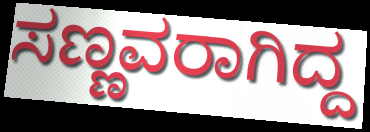
ಸಣ್ಣವರಾಗಿದ್ದ